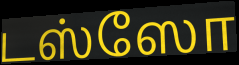
டஸ்ஸோ